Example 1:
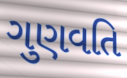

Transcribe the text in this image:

ગુણવતિ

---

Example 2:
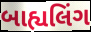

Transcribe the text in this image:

બાહ્યલિંગ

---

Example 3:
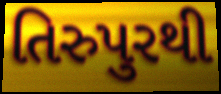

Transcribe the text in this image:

તિરુપુરથી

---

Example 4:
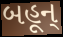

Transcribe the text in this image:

બહૂન્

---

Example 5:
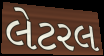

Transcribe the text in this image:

લેટરલ